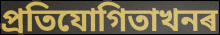
প্ৰতিযোগিতাখনৰ